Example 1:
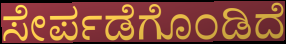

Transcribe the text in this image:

ಸೇರ್ಪಡೆಗೊಂಡಿದೆ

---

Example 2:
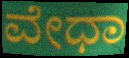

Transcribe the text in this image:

ವೇಧಾ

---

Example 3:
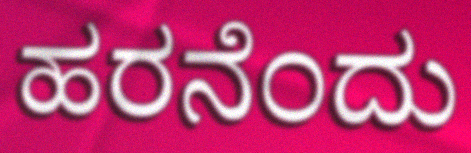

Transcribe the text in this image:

ಹರನೆಂದು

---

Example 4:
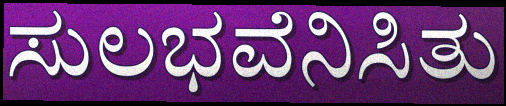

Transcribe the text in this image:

ಸುಲಭವೆನಿಸಿತು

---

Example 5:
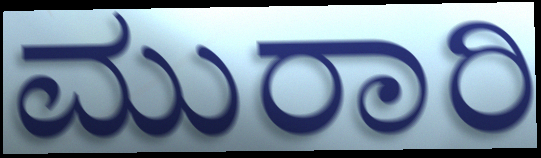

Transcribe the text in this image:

ಮುರಾರಿ